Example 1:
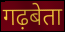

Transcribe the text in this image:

गढ़बेता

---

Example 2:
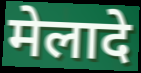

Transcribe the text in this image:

मेलादे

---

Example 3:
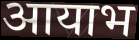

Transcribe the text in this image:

आयाभ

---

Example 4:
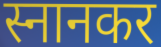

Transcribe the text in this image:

स्नानकर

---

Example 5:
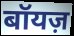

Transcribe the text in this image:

बॉयज़